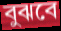
বুঝবে